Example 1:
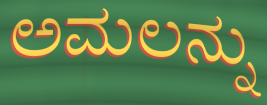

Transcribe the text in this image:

ಅಮಲನ್ನು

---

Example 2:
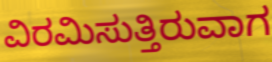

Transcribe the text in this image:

ವಿರಮಿಸುತ್ತಿರುವಾಗ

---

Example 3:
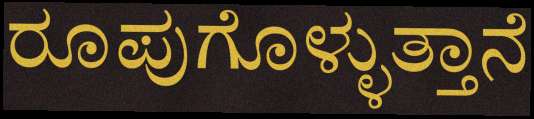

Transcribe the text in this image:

ರೂಪುಗೊಳ್ಳುತ್ತಾನೆ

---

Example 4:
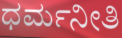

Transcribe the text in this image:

ಧರ್ಮನೀತಿ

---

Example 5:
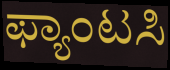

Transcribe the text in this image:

ಫ್ಯಾಂಟಸಿ